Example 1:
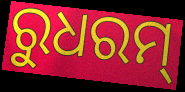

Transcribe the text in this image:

ରୁଧରମ୍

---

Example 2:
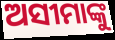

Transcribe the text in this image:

ଅସୀମାଙ୍କୁ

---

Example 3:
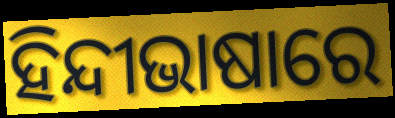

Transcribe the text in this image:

ହିନ୍ଦୀଭାଷାରେ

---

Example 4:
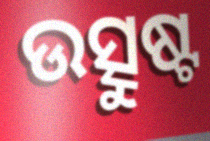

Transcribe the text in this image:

ଉତ୍ସୁଷ୍ଟ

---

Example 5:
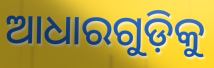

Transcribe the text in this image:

ଆଧାରଗୁଡ଼ିକୁ